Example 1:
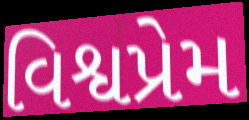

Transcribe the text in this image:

વિશ્વપ્રેમ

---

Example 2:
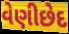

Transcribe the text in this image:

વેણીછેદ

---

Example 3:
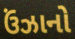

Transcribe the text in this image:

ઉંઝાનો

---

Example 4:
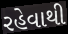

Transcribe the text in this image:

રહેવાથી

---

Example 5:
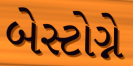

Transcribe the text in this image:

બેસ્ટોગ્ને